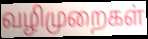
வழிமுறைகள்